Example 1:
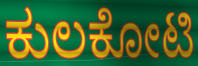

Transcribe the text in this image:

ಕುಲಕೋಟಿ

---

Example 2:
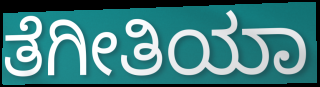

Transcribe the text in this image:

ತೆಗೀತಿಯಾ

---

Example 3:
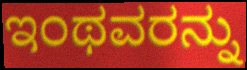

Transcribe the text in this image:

ಇಂಥವರನ್ನು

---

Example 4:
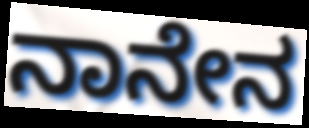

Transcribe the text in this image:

ನಾನೇನ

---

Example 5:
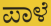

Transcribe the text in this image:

ಪಾಳೆ